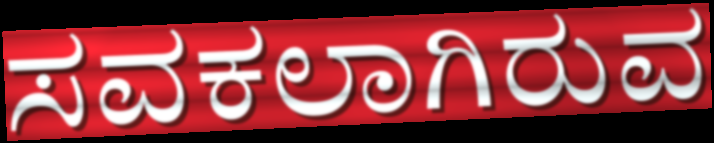
ಸವಕಲಾಗಿರುವ